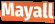
Mayall